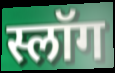
स्लॉग